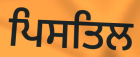
ਪਿਸਤਿਲ